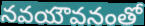
నవయౌవనంతో